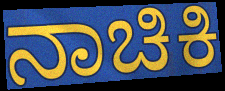
ನಾಚಿಕಿ